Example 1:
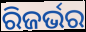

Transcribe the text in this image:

ରିଜର୍ଭର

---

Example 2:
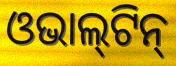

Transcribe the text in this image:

ଓଭାଲ୍‍ଟିନ୍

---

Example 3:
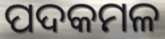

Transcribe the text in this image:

ପଦକମଳ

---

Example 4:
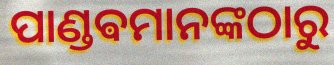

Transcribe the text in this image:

ପାଣ୍ଡଵମାନଙ୍କଠାରୁ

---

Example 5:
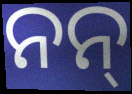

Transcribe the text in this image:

ନନ୍